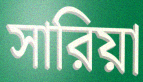
সারিয়া